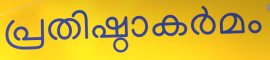
പ്രതിഷ്ഠാകർമം